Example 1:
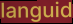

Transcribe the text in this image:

languid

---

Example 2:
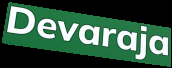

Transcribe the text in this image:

Devaraja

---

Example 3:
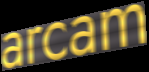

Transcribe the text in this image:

arcam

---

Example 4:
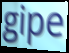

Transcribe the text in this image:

gipe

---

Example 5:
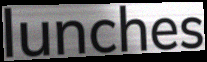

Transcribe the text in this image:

lunches